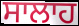
ਸਾਲਾਹ